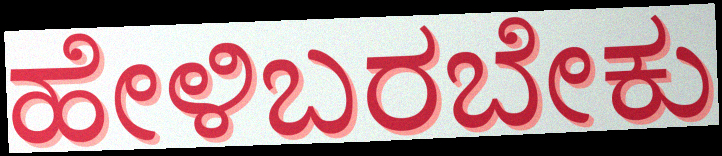
ಹೇಳಿಬರಬೇಕು